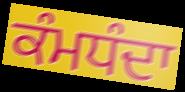
ਕੰਮਧੰਦਾ